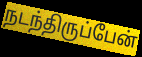
நடந்திருப்பேன்